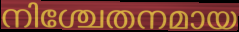
നിശ്ചേതനമായ